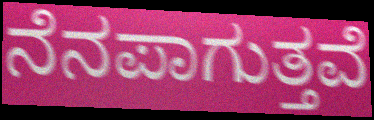
ನೆನಪಾಗುತ್ತವೆ